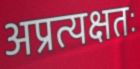
अप्रत्यक्षतः